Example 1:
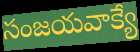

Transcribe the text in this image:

సంజయవాక్యే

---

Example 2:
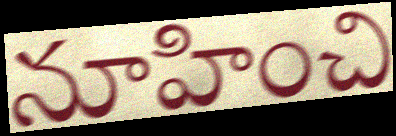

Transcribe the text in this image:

నూహించి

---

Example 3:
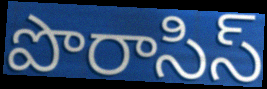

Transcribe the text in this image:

పొరాసిస్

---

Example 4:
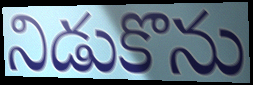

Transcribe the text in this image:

నిడుకొను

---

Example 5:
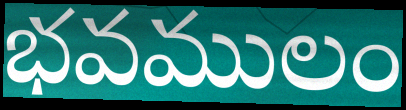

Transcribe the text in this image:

భవములం